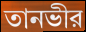
তানভীর